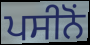
ਪਸੀਨੋਂ